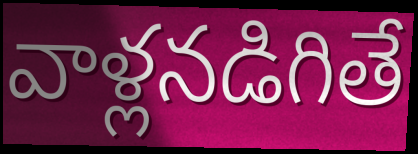
వాళ్లనడిగితే